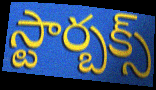
స్టార్బక్స్